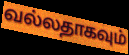
வல்லதாகவும்